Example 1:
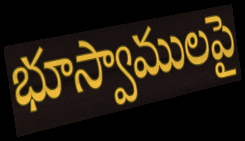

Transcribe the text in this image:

భూస్వాములపై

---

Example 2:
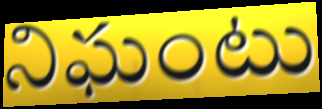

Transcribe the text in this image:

నిఘంటు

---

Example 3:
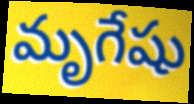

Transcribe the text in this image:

మృగేషు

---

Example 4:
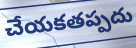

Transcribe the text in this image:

చేయకతప్పదు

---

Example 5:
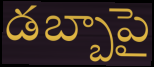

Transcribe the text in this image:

డబ్బాపై